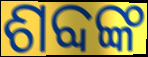
ଶବ୍ଦଙ୍କ